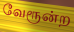
வேரூன்ற